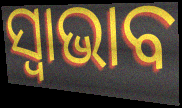
ସ୍ୱାଭାବ